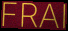
FRAI